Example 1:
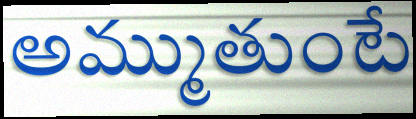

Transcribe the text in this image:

అమ్ముతుంటే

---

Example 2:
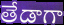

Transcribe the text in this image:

తేడాగా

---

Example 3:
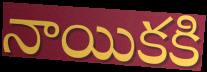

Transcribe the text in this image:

నాయికకి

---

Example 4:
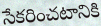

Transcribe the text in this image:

సేకరించటానికి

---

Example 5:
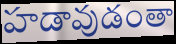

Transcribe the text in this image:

హడావుడంతా